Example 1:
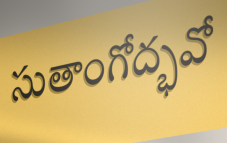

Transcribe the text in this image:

సుతాంగోద్భవో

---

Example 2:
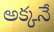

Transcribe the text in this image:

అక్కనే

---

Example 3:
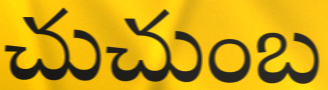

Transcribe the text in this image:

చుచుంబ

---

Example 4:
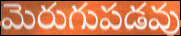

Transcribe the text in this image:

మెరుగుపడవు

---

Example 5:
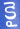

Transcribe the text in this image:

కై